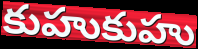
కుహుకుహు